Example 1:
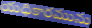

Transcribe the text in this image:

యధికారమును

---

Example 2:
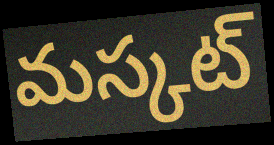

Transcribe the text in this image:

మస్కట్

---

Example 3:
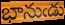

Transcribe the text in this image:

భానుఁడు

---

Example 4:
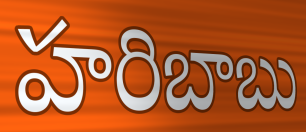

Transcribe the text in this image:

హరిబాబు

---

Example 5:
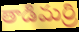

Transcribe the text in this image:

తాడిమర్రి